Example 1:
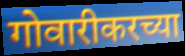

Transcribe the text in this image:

गोवारीकरच्या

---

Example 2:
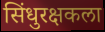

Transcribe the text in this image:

सिंधुरक्षकला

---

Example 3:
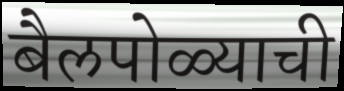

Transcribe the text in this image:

बैलपोळ्याची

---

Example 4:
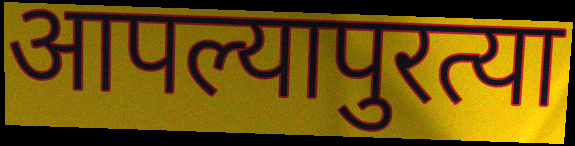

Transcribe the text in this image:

आपल्यापुरत्या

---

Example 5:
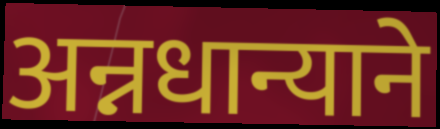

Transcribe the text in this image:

अन्नधान्याने